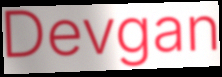
Devgan